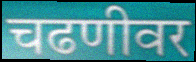
चढणीवर